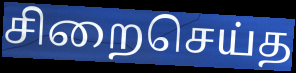
சிறைசெய்த